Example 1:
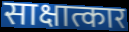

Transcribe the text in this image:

साक्षात्कार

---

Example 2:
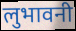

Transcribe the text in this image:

लुभावनी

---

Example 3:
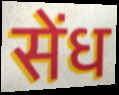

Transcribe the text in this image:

सेंध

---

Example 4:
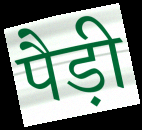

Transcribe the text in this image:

पैड़ी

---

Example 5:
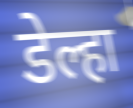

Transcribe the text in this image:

डेल्हा